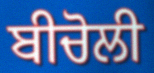
ਬੀਚੋਲੀ